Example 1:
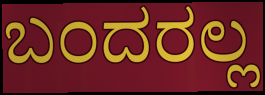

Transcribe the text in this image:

ಬಂದರಲ್ಲ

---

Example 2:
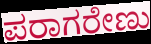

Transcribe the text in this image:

ಪರಾಗರೇಣು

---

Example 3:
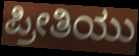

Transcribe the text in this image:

ಪ್ರೀತಿಯು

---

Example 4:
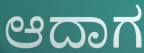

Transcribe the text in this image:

ಆದಾಗ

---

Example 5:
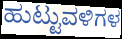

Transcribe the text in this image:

ಹುಟ್ಟುವಳಿಗಳ